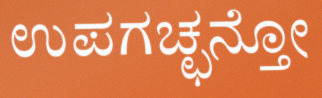
ಉಪಗಚ್ಛನ್ತೋ